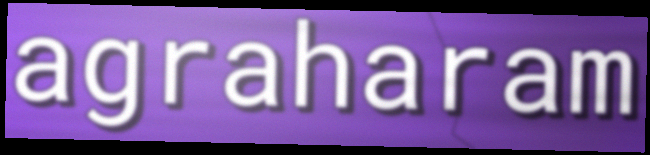
agraharam